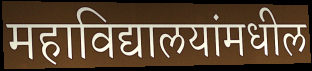
महाविद्यालयांमधील